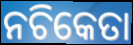
ନଚିକେତା